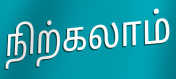
நிற்கலாம்